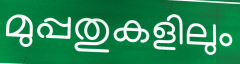
മുപ്പതുകളിലും